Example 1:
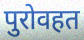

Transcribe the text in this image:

पुरोवहत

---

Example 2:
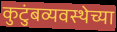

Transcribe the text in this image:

कुटुंबव्यवस्थेच्या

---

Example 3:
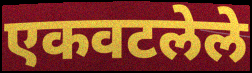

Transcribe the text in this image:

एकवटलेले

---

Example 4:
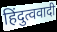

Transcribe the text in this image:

हिंदुत्ववादी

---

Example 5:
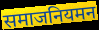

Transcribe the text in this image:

समाजनियमन